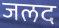
जलद